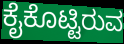
ಕೈಕೊಟ್ಟಿರುವ